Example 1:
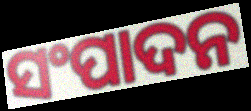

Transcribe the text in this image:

ସଂପାଦନ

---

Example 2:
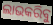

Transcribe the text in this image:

ଲାଭକରିବୁ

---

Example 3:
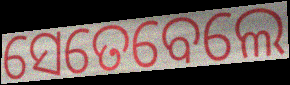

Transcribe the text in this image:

ସେତେବେଲେ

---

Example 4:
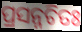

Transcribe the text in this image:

ପ୍ରସନ୍ନଚିତଃ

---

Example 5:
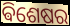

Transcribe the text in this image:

ଵିଶେଷର